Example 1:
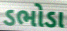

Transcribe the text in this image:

ડભોડા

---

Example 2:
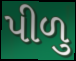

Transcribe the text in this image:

પીળુ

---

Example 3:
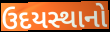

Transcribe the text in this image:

ઉદયસ્થાનો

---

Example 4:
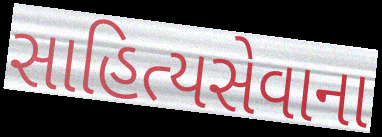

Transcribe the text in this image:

સાહિત્યસેવાના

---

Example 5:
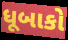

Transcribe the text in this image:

ધૂબાકો